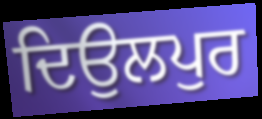
ਦਿਉਲਪੁਰ